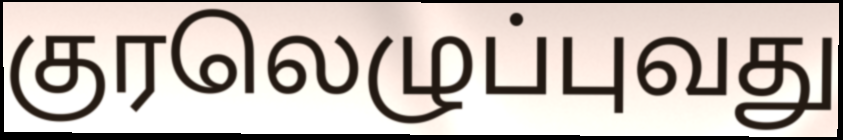
குரலெழுப்புவது